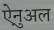
ऐनुअल